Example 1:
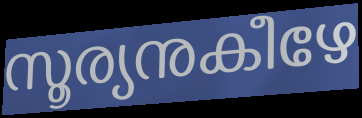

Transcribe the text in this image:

സൂര്യനുകീഴേ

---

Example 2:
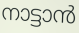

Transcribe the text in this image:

നാട്ടാൻ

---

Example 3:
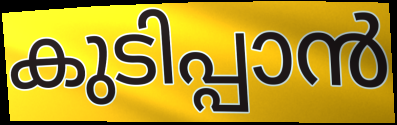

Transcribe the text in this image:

കുടിപ്പാൻ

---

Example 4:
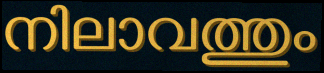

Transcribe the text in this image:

നിലാവത്തും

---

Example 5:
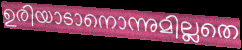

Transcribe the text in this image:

ഉരിയാടാനൊന്നുമില്ലതെ